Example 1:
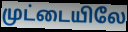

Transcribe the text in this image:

முட்டையிலே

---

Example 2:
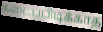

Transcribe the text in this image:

கடைப்பிடிக்காத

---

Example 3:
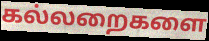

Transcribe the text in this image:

கல்லறைகளை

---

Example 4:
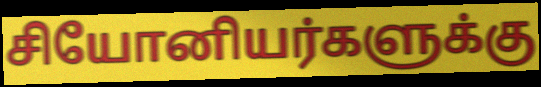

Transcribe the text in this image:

சியோனியர்களுக்கு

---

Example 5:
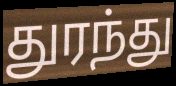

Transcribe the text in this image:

துரந்து